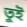
তুই